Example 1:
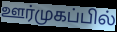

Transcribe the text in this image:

ஊர்முகப்பில்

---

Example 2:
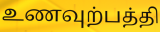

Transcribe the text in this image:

உணவுற்பத்தி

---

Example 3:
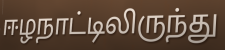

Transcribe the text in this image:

ஈழநாட்டிலிருந்து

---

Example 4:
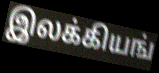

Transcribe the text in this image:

இலக்கியங்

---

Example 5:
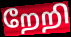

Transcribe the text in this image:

றேறி